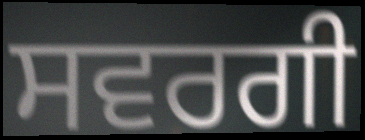
ਸਵਰਗੀ